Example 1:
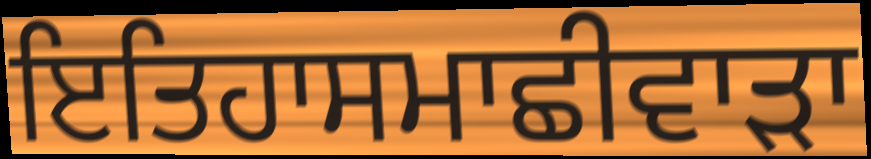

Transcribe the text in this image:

ਇਤਿਹਾਸਮਾਛੀਵਾੜਾ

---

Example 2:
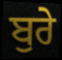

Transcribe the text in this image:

ਬੁਰੇ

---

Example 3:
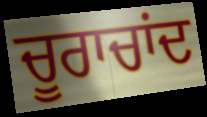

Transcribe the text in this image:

ਚੂਰਾਚਾਂਦ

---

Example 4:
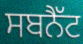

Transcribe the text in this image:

ਸਬਨੈੱਟ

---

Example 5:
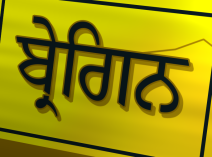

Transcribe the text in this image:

ਬ੍ਰੇਗਿਨ